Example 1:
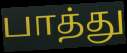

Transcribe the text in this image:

பாத்து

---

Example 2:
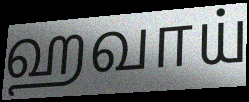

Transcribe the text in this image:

ஹவாய்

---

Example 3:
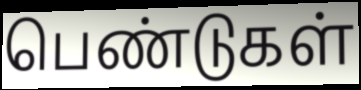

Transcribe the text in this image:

பெண்டுகள்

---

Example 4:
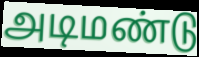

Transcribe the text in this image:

அடிமண்டு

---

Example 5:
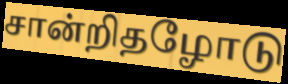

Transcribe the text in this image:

சான்றிதழோடு